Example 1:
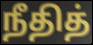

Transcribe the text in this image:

நீதித்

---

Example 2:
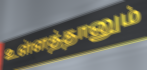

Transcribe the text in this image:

உள்ளத்தானும்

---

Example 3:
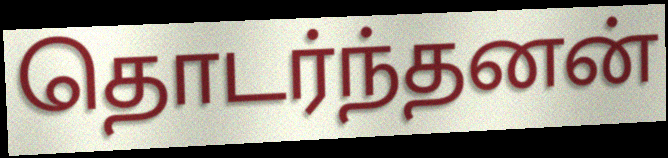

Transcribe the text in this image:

தொடர்ந்தனன்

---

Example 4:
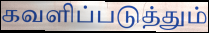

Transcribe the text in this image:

கவளிப்படுத்தும்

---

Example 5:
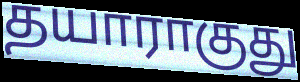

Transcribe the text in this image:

தயாராகுது